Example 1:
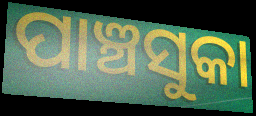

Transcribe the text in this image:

ପାଞ୍ଚସୁକା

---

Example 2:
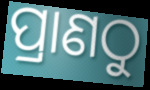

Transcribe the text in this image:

ପ୍ରାଣଠୁ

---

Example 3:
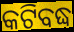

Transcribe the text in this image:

କଟିବଦ୍ଧ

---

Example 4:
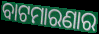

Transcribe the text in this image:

ବାଟମାରଣାର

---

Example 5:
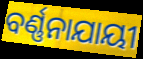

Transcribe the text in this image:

ବର୍ଣ୍ଣନାଯାୟୀ